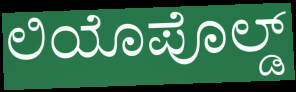
ಲಿಯೊಪೊಲ್ಡ್